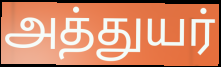
அத்துயர்